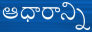
ఆధారాన్ని